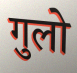
गुलो